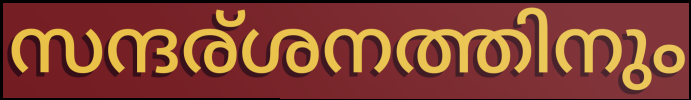
സന്ദര്ശനത്തിനും